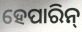
ହେପାରିନ୍